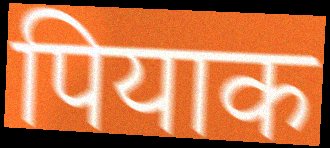
पियाक